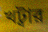
খট্বার